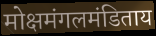
मोक्षमंगलमंडिताय